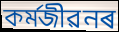
কৰ্মজীৱনৰ